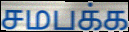
சமபக்க